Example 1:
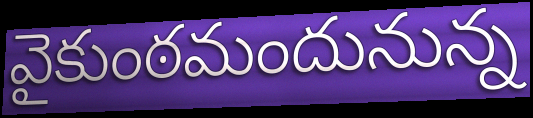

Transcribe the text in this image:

వైకుంఠమందునున్న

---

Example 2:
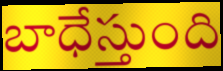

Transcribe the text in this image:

బాధేస్తుంది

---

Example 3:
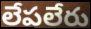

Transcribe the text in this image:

లేపలేరు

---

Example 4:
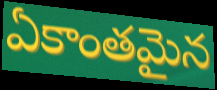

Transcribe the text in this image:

ఏకాంతమైన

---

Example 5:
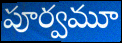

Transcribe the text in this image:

పూర్వమూ